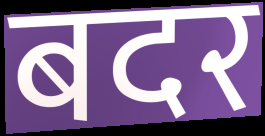
बदर